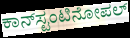
ಕಾನ್‍ಸ್ಟಂಟಿನೋಪಲ್